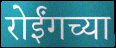
रोईंगच्या